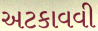
અટકાવવી